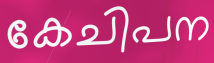
കേചിപന